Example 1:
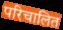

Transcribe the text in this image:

परिचालित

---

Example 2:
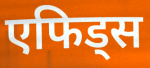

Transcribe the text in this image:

एफिड्स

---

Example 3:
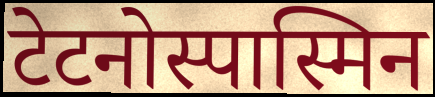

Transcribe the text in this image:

टेटनोस्पास्मिन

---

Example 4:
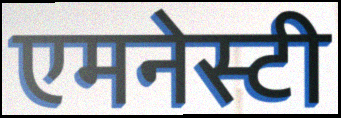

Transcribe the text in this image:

एमनेस्टी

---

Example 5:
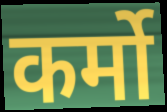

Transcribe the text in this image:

कर्मो